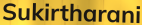
Sukirtharani